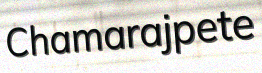
Chamarajpete